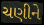
ચણીને